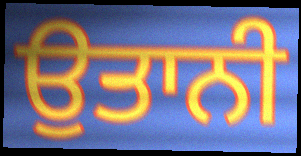
ਉਤਾਨੀ